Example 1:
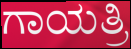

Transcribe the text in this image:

ಗಾಯತ್ರಿ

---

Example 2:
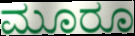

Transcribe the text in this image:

ಮೂರೂ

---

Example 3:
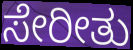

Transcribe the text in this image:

ಸೇರೀತು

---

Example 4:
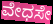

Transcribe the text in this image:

ವೇಧಸೇ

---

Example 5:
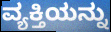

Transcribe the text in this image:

ವ್ಯಕ್ತಿಯನ್ನು